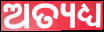
ଅତ୍ୟଧ୍ୟ